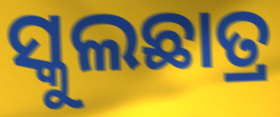
ସ୍କୁଲଛାତ୍ର